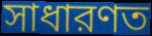
সাধারণত